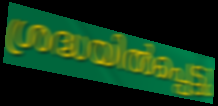
ശ്രദ്ധയിൽപ്പെട്ടു